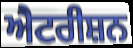
ਐਟਰੀਸ਼ਨ